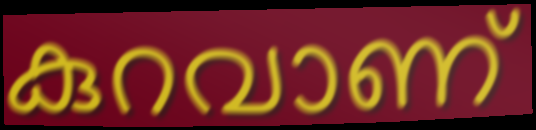
കുറവാണ്